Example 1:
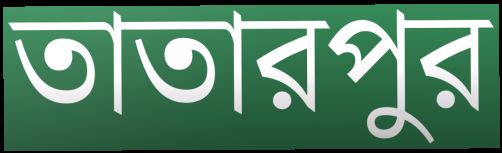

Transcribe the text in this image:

তাতারপুর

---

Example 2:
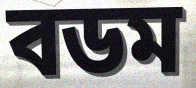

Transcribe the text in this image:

বডম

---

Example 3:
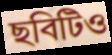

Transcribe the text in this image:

ছবিটিও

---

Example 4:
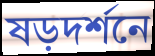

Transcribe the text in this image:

ষড়দর্শনে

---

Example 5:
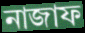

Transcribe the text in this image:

নাজাফ